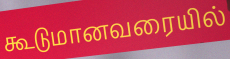
கூடுமானவரையில்